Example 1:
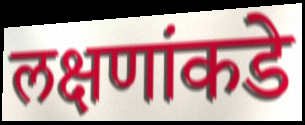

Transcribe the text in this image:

लक्षणांकडे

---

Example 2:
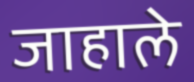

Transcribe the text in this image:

जाहाले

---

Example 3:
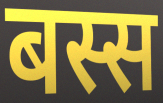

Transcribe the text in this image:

बस्स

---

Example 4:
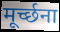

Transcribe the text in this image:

मूर्च्छना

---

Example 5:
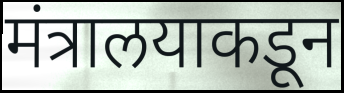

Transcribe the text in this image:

मंत्रालयाकडून